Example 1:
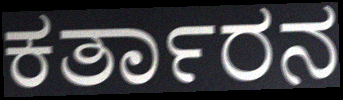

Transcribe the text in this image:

ಕರ್ತಾರನ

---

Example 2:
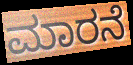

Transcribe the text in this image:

ಮಾರನೆ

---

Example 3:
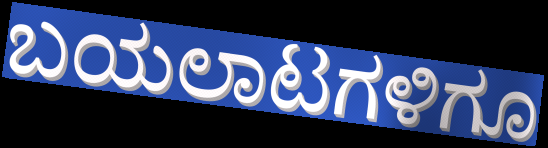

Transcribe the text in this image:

ಬಯಲಾಟಗಳಿಗೂ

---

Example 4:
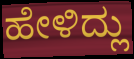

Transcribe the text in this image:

ಹೇಳಿದ್ಲು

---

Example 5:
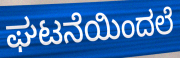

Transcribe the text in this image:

ಘಟನೆಯಿಂದಲೆ